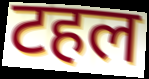
टहल